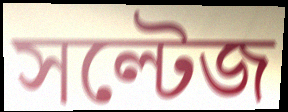
সল্টেজ